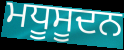
ਮਧੂਸੂਦਨ